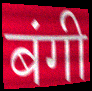
बंगी